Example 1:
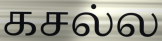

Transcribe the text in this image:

கசல்ல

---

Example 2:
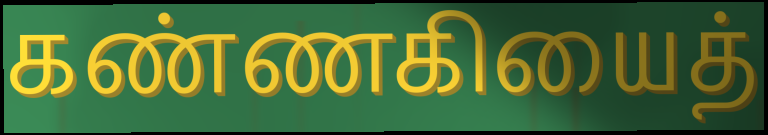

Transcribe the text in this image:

கண்ணகியைத்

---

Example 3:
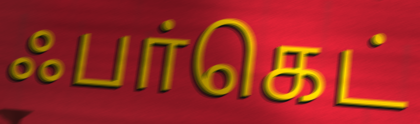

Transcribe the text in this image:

ஃபர்கெட்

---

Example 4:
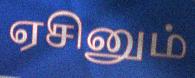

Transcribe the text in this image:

ஏசினும்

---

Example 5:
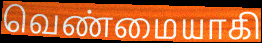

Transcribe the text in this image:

வெண்மையாகி